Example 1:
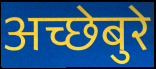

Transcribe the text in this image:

अच्छेबुरे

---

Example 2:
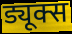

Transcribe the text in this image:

ड्यूक्स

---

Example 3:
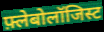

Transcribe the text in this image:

फ़्लेबोलॉजिस्ट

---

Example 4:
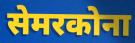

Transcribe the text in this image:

सेमरकोना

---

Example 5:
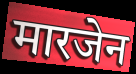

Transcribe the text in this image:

मारजेन